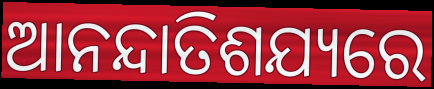
ଆନନ୍ଦାତିଶଯ୍ୟରେ